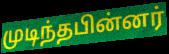
முடிந்தபின்னர்